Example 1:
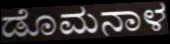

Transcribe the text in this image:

ಡೊಮನಾಳ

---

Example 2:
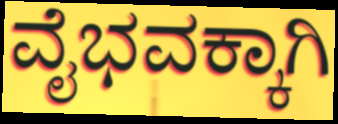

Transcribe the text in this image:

ವೈಭವಕ್ಕಾಗಿ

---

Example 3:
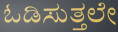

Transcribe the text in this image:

ಓಡಿಸುತ್ತಲೇ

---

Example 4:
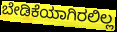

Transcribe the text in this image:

ಬೇಡಿಕೆಯಾಗಿರಲಿಲ್ಲ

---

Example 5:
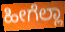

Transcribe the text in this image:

ಹೀಗೆಲ್ಲಾ